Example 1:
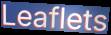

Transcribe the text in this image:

Leaflets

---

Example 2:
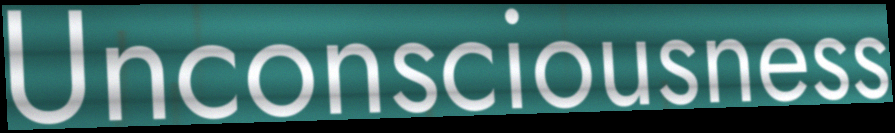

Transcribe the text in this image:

Unconsciousness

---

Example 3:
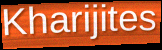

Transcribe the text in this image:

Kharijites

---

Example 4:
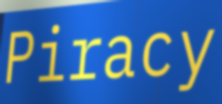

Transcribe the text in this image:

Piracy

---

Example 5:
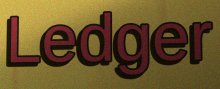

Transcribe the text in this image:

Ledger